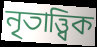
নৃতাত্ত্বিক